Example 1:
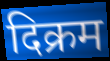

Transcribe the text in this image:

दिक्रम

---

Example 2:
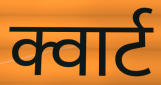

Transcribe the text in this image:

क्वार्ट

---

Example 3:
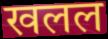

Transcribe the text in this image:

खलल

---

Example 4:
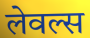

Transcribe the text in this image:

लेवल्स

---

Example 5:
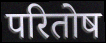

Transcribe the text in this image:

परितोष